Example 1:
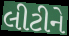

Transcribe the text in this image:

લીટીને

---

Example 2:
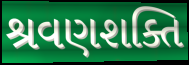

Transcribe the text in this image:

શ્રવણશક્તિ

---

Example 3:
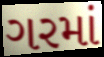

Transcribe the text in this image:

ગરમાં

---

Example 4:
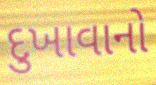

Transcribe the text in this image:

દુખાવાનો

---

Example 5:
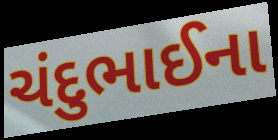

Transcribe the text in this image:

ચંદુભાઈના